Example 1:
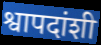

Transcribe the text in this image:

श्वापदांशी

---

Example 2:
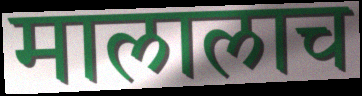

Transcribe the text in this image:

मालालाच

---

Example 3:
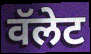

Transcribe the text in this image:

वॅलेट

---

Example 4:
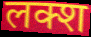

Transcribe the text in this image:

लक्श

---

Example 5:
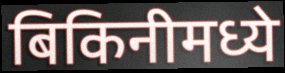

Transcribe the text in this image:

बिकिनीमध्ये